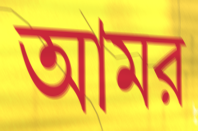
আমর